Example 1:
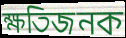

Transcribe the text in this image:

ক্ষতিজনক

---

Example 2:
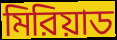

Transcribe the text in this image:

মিরিয়াড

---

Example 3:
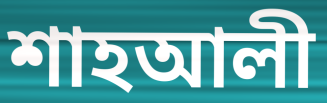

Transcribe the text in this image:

শাহআলী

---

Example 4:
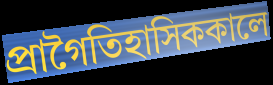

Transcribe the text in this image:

প্রাগৈতিহাসিককালে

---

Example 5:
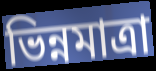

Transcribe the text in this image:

ভিন্নমাত্রা